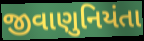
જીવાણુનિયંતા